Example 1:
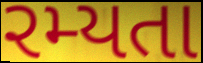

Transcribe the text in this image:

રમ્યતા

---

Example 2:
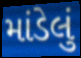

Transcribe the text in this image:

માંડેલું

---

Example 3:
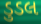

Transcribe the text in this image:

ડુડલ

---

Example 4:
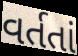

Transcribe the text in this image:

વર્તતાં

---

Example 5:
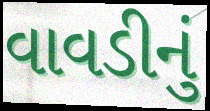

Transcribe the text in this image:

વાવડીનું